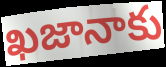
ఖజానాకు